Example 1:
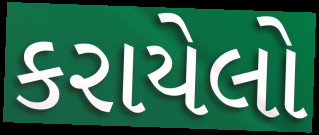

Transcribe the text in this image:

કરાયેલો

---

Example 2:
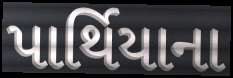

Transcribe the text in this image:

પાર્થિયાના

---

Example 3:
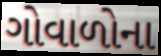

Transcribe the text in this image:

ગોવાળોના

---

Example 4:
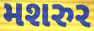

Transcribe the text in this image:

મશરુર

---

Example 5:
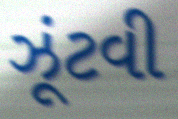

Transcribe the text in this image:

ઝૂંટવી